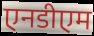
एनडीएम